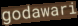
godawari